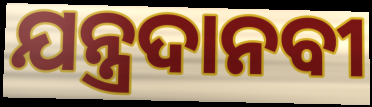
ଯନ୍ତ୍ରଦାନବୀ